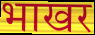
भाखर